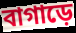
বাগাড়ে